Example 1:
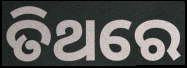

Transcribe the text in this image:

ତିଥରେ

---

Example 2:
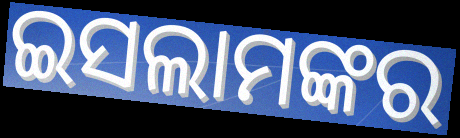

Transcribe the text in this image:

ଇସଲାମଙ୍କର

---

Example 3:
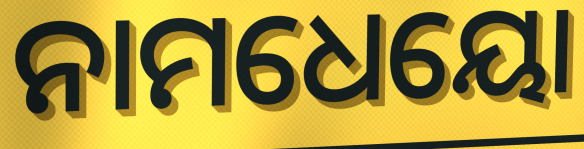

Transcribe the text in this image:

ନାମଧେୟୋ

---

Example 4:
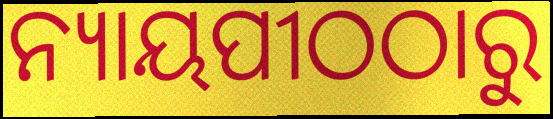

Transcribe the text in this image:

ନ୍ୟାୟପୀଠଠାରୁ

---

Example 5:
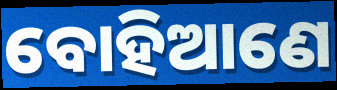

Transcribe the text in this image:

ବୋହିଆଣେ